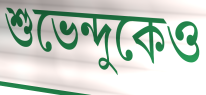
শুভেন্দুকেও